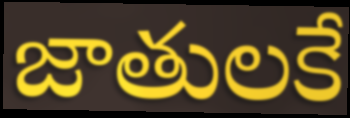
జాతులకే